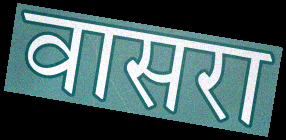
वासरा